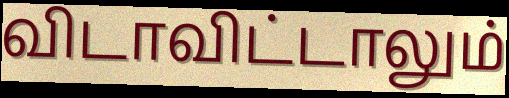
விடாவிட்டாலும்